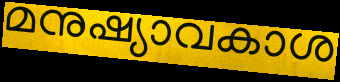
മനുഷ്യാവകാശ